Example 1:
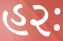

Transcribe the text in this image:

હરઃ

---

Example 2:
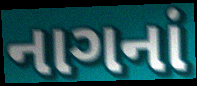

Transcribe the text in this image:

નાગનાં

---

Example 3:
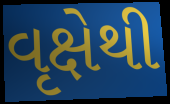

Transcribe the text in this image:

વૃક્ષેથી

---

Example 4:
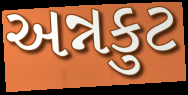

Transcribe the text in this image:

અન્નકુટ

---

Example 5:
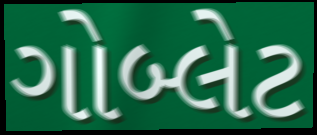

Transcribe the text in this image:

ગોબ્લેટ